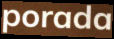
porada